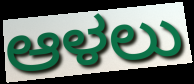
ಆಳಲು